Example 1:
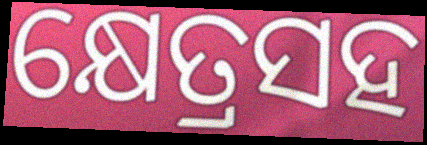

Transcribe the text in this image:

କ୍ଷେତ୍ରସହ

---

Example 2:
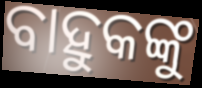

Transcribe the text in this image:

ବାହୁକଙ୍କୁ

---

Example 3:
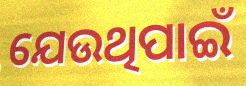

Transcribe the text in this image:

ଯେଉଥିପାଇଁ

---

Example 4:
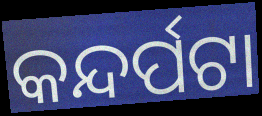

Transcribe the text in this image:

କନ୍ଦର୍ପଟା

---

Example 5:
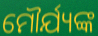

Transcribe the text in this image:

ମୌର୍ଯ୍ୟଙ୍କ